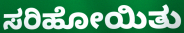
ಸರಿಹೋಯಿತು